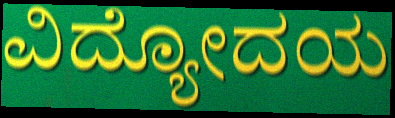
ವಿದ್ಯೋದಯ